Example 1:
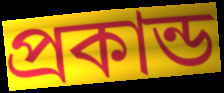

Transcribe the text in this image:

প্রকান্ড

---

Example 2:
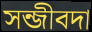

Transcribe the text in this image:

সন্জীবদা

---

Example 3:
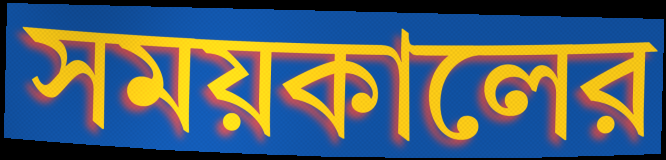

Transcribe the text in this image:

সময়কালের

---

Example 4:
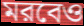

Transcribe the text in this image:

মরবেও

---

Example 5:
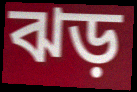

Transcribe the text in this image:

ঝড়